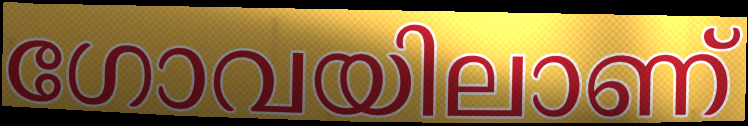
ഗോവയിലാണ്